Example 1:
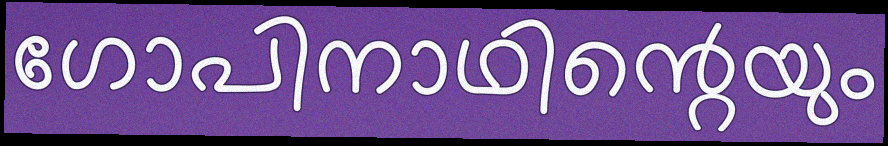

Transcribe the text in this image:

ഗോപിനാഥിന്റെയും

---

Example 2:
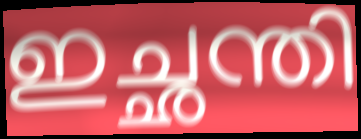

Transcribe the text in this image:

ഇച്ഛന്തി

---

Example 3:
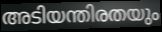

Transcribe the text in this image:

അടിയന്തിരതയും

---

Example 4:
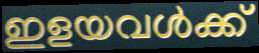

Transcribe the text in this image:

ഇളയവൾക്ക്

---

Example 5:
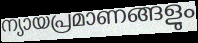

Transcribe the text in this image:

ന്യായപ്രമാണങ്ങളും